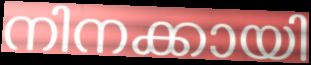
നിനക്കായി